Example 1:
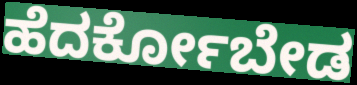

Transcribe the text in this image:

ಹೆದರ್ಕೋಬೇಡ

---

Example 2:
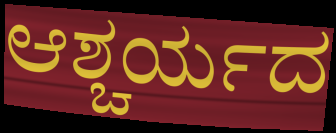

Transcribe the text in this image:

ಆಶ್ಚರ್ಯದ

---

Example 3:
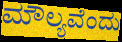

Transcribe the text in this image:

ಮೌಲ್ಯವೆಂದು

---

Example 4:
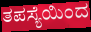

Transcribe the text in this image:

ತಪಸ್ಯೆಯಿಂದ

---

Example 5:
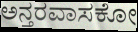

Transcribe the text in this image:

ಅನ್ತರವಾಸಕೋ